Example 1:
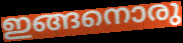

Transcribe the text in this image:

ഇങ്ങനൊരു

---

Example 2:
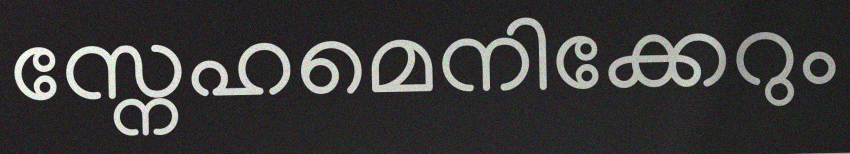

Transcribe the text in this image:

സ്നേഹമെനിക്കേറും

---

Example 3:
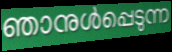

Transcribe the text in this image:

ഞാനുൾപ്പെടുന്ന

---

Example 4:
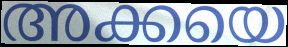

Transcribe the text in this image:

അക്കയെ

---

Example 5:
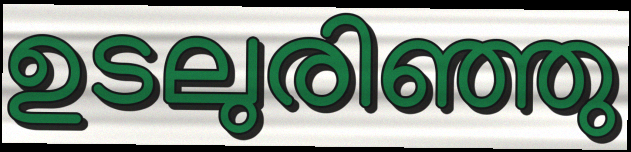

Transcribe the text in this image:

ഉടലുരിഞ്ഞു